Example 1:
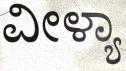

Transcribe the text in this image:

ವೀಳ್ಯಾ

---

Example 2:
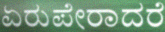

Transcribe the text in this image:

ಏರುಪೇರಾದರೆ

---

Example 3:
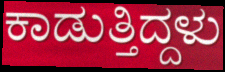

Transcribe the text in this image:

ಕಾಡುತ್ತಿದ್ದಳು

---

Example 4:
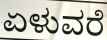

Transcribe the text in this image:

ಏಳುವರೆ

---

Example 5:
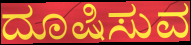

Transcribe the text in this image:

ದೂಷಿಸುವ